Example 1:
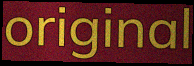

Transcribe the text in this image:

original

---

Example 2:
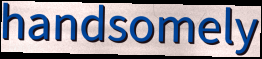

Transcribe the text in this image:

handsomely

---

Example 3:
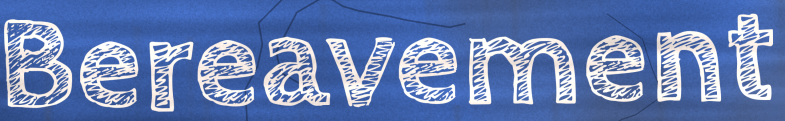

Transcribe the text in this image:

Bereavement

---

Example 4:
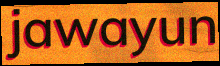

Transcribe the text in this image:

jawayun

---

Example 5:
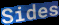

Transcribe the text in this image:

Sides